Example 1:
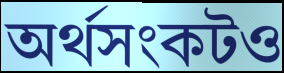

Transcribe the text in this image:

অর্থসংকটও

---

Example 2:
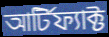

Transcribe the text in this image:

আর্টিফ্যাক্ট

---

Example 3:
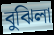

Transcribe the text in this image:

বুঝিলা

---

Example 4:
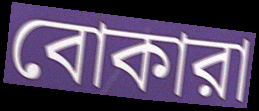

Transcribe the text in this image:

বোকারা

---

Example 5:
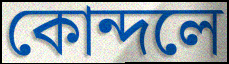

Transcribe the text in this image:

কোন্দলে